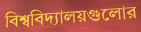
বিশ্ববিদ্যালয়গুলোর